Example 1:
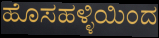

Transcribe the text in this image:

ಹೊಸಹಳ್ಳಿಯಿಂದ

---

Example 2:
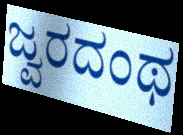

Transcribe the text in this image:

ಜ್ವರದಂಥ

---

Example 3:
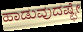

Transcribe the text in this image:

ಹಾಡುವುದಷ್ಟೇ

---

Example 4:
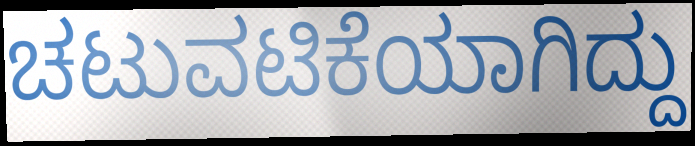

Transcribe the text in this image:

ಚಟುವಟಿಕೆಯಾಗಿದ್ದು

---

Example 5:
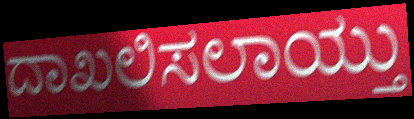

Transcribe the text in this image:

ದಾಖಲಿಸಲಾಯ್ತು